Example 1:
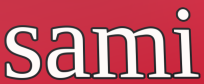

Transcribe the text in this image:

sami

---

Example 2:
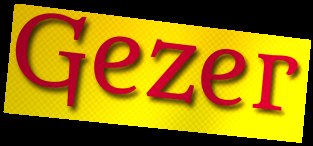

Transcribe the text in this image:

Gezer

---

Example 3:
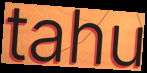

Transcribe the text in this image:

tahu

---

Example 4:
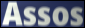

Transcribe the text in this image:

Assos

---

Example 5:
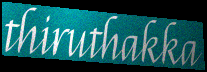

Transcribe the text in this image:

thiruthakka